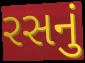
રસનું